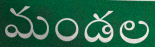
మండల